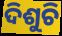
ଦିଶୁଚି